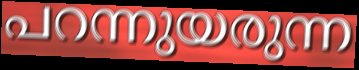
പറന്നുയരുന്ന